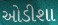
ઓડીશા